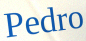
Pedro